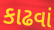
કાઢવાં